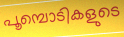
പൂമ്പൊടികളുടെ